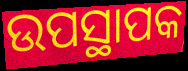
ଉପସ୍ଥାପକ